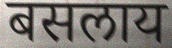
बसलाय